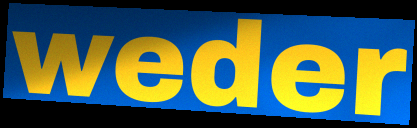
weder